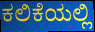
ಕಲಿಕೆಯಲ್ಲಿ